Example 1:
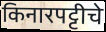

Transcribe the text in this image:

किनारपट्टीचे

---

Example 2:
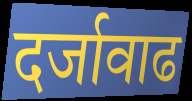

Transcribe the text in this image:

दर्जावाढ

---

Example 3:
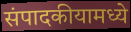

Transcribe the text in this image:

संपादकीयामध्ये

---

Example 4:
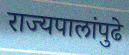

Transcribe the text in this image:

राज्यपालांपुढे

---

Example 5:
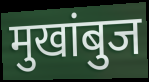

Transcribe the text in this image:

मुखांबुज